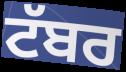
ਟੱਬਰ